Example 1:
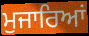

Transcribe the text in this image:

ਮੁਜਾਰਿਆਂ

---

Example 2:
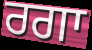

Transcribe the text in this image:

ਰਗਾ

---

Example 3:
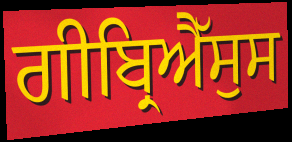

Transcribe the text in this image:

ਗੀਬ੍ਰਿਐੱਸੁਸ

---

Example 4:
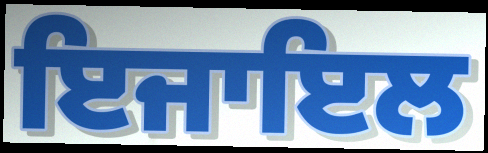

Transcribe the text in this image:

ਇਜਾਇਲ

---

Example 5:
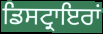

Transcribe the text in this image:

ਡਿਸਟ੍ਰਾਇਰਾਂ